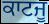
ਕਾਟਜੂ